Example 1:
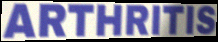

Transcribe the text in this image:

ARTHRITIS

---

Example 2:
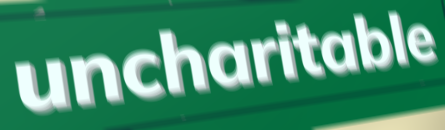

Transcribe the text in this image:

uncharitable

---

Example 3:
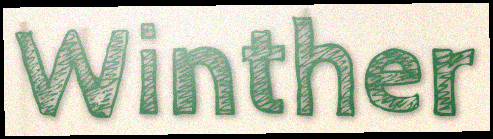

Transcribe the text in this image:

Winther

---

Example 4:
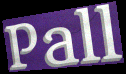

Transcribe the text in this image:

Pall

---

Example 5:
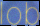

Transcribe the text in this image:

Iob